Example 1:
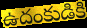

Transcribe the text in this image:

ఉదంకుడికి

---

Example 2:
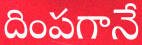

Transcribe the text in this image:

దింపగానే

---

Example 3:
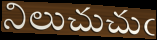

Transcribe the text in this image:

నిలుచుచుఁ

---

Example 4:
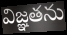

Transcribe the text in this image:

విజ్ఞతను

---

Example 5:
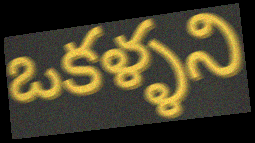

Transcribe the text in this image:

ఒకళ్ళని